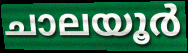
ചാലയൂർ